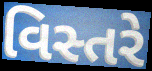
વિસ્તરે